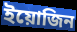
ইয়োজিন